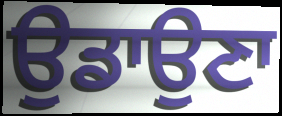
ਉਡਾਉਣਾ